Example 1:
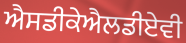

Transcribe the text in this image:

ਐਸਡੀਕੇਐਲਡੀਏਵੀ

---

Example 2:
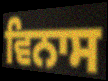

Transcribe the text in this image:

ਵਿਨਾਸ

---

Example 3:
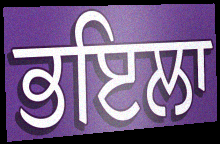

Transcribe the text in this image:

ਭਇਲਾ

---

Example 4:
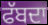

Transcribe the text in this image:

ਫੱਬਦਾ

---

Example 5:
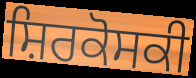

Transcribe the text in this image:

ਸ਼ਿਰਕੋਸਕੀ